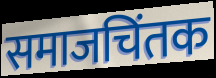
समाजचिंतक